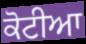
ਕੋਟੀਆ